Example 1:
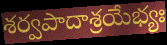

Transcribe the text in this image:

శర్వపాదాశ్రయేభ్యః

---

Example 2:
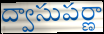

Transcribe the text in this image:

ద్వాసుపర్ణా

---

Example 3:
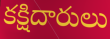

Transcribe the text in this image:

కక్షిదారులు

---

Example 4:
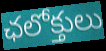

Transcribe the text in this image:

ఛలోక్తులు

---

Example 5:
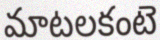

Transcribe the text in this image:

మాటలకంటె